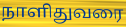
நாளிதுவரை